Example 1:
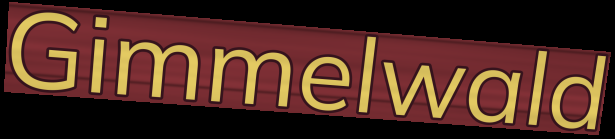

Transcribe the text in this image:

Gimmelwald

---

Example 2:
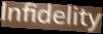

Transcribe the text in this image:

Infidelity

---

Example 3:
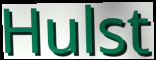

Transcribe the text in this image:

Hulst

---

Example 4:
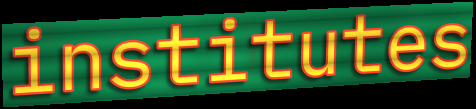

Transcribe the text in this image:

institutes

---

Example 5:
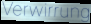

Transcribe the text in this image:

Verwirrung